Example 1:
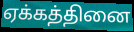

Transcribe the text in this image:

ஏக்கத்தினை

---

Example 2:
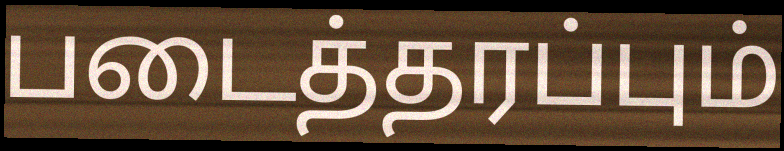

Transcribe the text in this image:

படைத்தரப்பும்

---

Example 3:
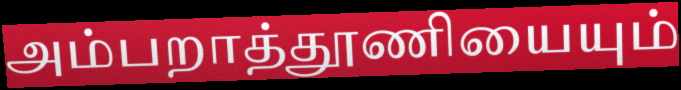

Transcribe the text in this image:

அம்பறாத்தூணியையும்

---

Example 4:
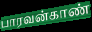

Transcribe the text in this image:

பாரவன்காண்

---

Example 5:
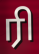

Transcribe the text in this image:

ரி